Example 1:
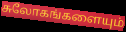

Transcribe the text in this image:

சுலோகங்களையும்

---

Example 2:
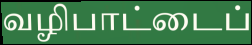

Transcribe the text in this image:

வழிபாட்டைப்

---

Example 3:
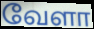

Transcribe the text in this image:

வேளா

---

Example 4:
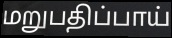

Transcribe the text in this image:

மறுபதிப்பாய்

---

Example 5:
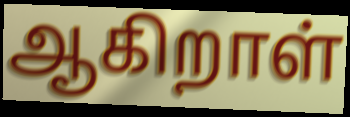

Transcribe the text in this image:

ஆகிறாள்